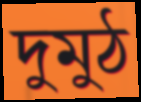
দুমুঠ